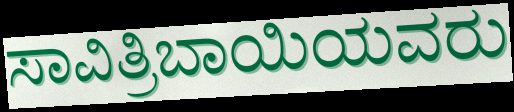
ಸಾವಿತ್ರಿಬಾಯಿಯವರು